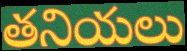
తనియలు